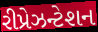
રીપ્રેઝન્ટેશન